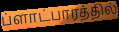
ப்ளாட்பாரத்தில்